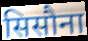
सिसौना